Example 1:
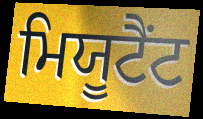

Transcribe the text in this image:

ਮਿਯੂਟੈਂਟ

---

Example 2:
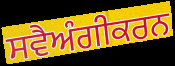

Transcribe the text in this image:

ਸਵੈਅੰਗੀਕਰਨ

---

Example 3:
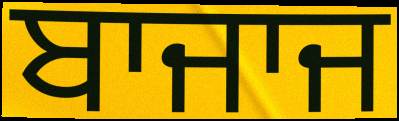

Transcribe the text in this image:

ਬਾਜਾਜ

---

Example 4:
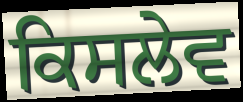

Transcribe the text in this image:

ਕਿਸਲੇਵ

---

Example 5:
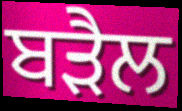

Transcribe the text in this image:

ਬੜੈਲ